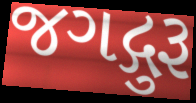
જગદ્ગુરૂ